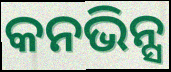
କନଭିନ୍ସ